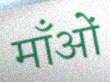
माँओं